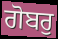
ਗੋਬਰੁ